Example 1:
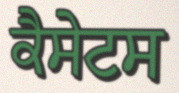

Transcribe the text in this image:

ਕੈਸੇਟਸ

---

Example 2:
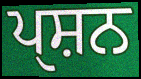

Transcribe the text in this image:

ਪੑਸ਼ਨ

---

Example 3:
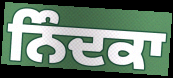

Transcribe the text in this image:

ਨਿੰਦਕਾ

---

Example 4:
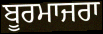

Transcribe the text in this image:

ਬੂਰਮਾਜਰਾ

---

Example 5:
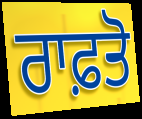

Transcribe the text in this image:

ਰਾਫ਼ਤੋ